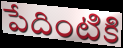
పేదింటికి